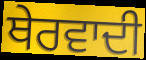
ਥੇਰਵਾਦੀ